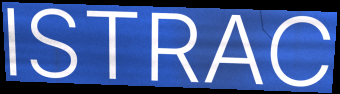
ISTRAC